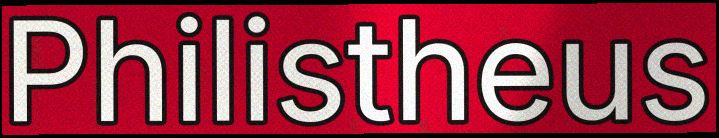
Philistheus